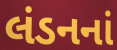
લંડનનાં